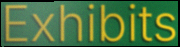
Exhibits